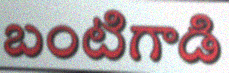
బంటిగాడి